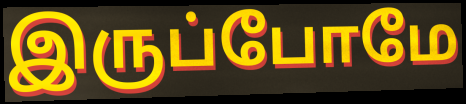
இருப்போமே